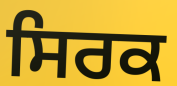
ਸਿਰਕ